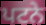
ਪਟਨੇ